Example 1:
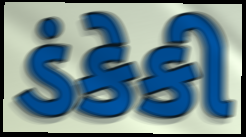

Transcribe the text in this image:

ડંકેકી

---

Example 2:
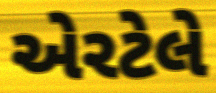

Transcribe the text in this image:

એરટેલે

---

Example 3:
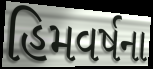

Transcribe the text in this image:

હિમવર્ષના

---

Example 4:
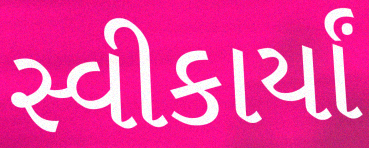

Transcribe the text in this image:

સ્વીકાર્યાં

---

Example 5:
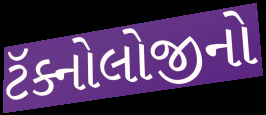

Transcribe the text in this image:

ટૅક્નોલોજીનો